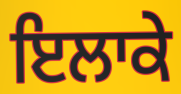
ਇਲਾਕੇ